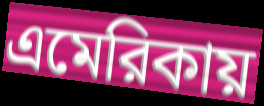
এমেরিকায়